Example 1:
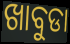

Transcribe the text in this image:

ଖାବୁଡା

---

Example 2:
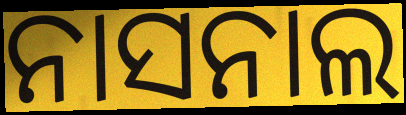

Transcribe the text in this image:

ନାସନାଲ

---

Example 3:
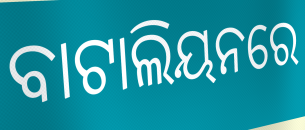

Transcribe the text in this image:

ବାଟାଲିୟନରେ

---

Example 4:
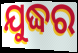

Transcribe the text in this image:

ଯୁଦ୍ଧର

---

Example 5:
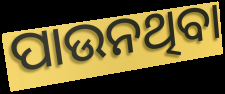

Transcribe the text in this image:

ପାଉନଥିବା